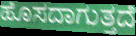
ಹೊಸದಾಗುತ್ತದೆ